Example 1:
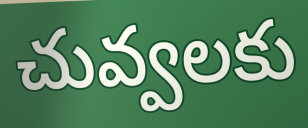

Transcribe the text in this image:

చువ్వలకు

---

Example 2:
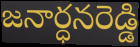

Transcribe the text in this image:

జనార్ధనరెడ్డి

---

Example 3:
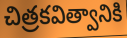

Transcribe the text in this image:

చిత్రకవిత్వానికి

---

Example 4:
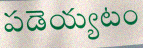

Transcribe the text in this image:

పడెయ్యటం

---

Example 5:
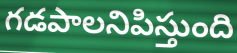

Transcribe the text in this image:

గడపాలనిపిస్తుంది